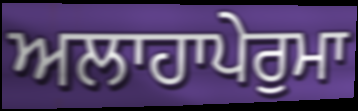
ਅਲਾਹਾਪੇਰੁਮਾ